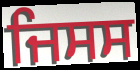
ਜਿਸਸ